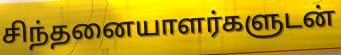
சிந்தனையாளர்களுடன்